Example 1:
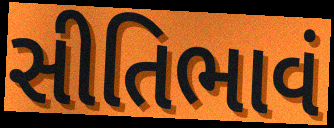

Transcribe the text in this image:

સીતિભાવં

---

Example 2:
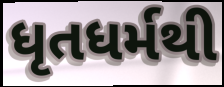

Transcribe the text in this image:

ધૃતધર્મથી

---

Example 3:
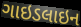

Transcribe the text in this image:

ગાઇડલાઇન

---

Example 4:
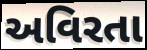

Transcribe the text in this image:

અવિરતા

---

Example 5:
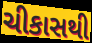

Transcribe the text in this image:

ચીકાસથી